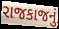
રાજકાજનું